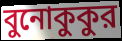
বুনোকুকুর